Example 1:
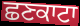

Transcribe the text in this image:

ਛਣਕਾਟਾ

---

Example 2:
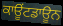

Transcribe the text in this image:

ਕਾਊਂਟਡਾਊਨ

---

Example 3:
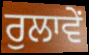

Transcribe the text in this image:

ਰੁਲਾਵੇਂ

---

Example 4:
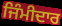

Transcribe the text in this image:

ਜਿੰਮੀਦਾਰ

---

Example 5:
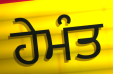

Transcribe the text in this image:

ਹੇਮੰਤ